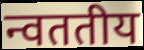
न्वततीय